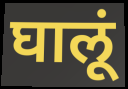
घालूं